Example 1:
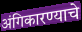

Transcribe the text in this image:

अंगिकारण्याचे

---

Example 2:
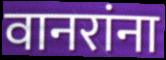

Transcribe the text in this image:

वानरांना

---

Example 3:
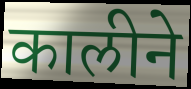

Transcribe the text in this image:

कालीने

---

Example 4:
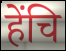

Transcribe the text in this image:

हेंचि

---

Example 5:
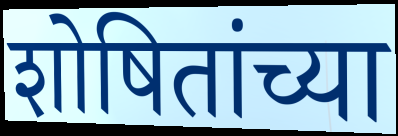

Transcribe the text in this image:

शोषितांच्या